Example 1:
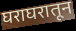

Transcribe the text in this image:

घराघरातून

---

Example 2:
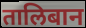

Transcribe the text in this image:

तालिबान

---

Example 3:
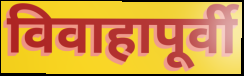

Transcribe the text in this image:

विवाहापूर्वी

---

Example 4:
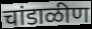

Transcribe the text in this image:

चांडाळीण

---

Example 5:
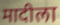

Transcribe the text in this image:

मादीला